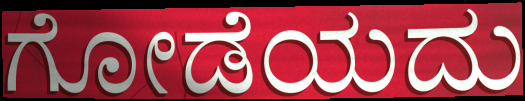
ಗೋಡೆಯದು